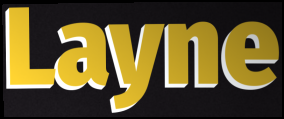
Layne